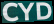
CYD